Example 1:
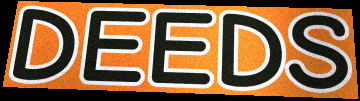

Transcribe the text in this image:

DEEDS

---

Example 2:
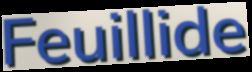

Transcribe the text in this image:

Feuillide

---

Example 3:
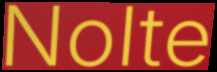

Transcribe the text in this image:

Nolte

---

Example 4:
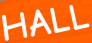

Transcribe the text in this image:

HALL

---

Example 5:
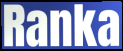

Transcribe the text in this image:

Ranka